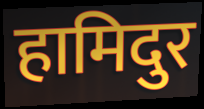
हामिदुर